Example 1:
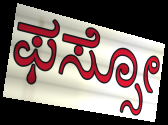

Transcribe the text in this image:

ಫಸ್ಸೋ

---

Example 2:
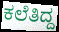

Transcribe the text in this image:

ಕಲೆತಿದ್ದ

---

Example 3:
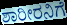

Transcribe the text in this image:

ಶಾರೀರನಿಗೆ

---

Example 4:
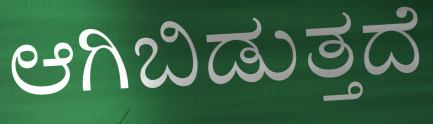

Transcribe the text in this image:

ಆಗಿಬಿಡುತ್ತದೆ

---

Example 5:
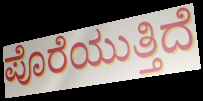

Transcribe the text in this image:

ಪೊರೆಯುತ್ತಿದೆ